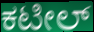
ಕಟೀಲ್